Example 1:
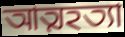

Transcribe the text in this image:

আত্মহত্যা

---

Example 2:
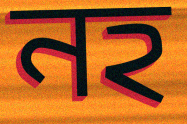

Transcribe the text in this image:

নহ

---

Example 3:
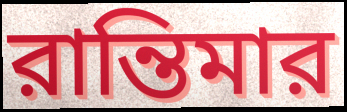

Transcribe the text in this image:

রান্তিমার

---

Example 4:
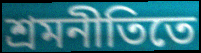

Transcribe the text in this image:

শ্রমনীতিতে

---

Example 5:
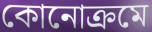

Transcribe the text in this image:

কোনোক্রমে